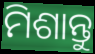
ମିଶାନ୍ତୁ